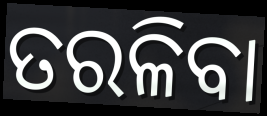
ତରଳିବା